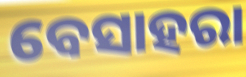
ବେସାହରା